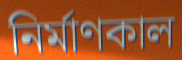
নির্মাণকাল